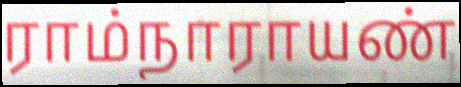
ராம்நாராயண்